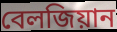
বেলজিয়ান